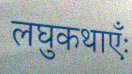
लघुकथाएँः